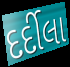
દર્દીલા